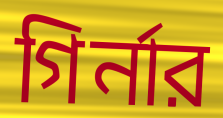
গির্নার